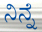
ನಿನ್ನೆ